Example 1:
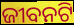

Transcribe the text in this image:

ଜୀବନଟି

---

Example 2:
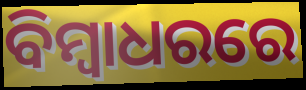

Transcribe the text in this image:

ବିମ୍ୱାଧରରେ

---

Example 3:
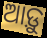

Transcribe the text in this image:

ଆଡ଼ୁ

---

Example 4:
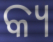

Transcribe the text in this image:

କ୍ୟ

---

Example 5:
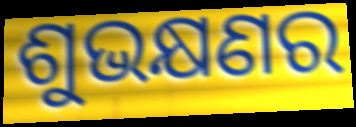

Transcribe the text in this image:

ଶୁଭକ୍ଷଣର